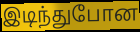
இடிந்துபோன